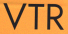
VTR